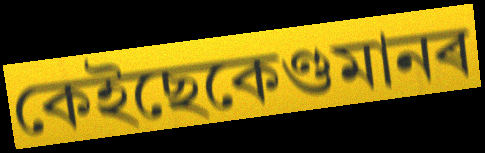
কেইছেকেণ্ডমানৰ